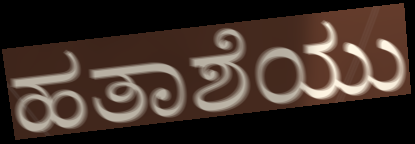
ಹತಾಶೆಯು